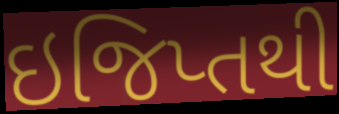
ઇજિપ્તથી